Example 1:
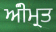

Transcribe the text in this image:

ਅੰੀਮ੍ਰਤ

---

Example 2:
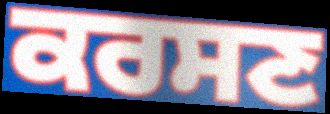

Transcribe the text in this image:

ਕਰਸਣ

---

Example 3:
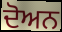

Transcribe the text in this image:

ਦੋਅਨ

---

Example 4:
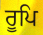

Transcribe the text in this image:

ਰੂਪਿ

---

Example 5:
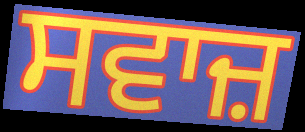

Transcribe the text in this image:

ਸਵਾਜ਼